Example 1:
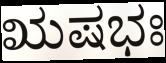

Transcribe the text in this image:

ಋಷಭಃ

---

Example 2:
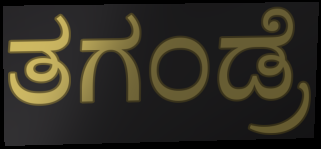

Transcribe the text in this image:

ತಗಂಡ್ರೆ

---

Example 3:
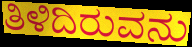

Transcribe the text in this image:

ತಿಳಿದಿರುವನು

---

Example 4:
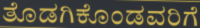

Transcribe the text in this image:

ತೊಡಗಿಕೊಂಡವರಿಗೆ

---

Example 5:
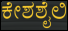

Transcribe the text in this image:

ಕೇಶಶೈಲಿ